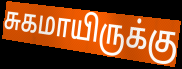
சுகமாயிருக்கு